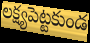
లక్ష్యపెట్టకుండ